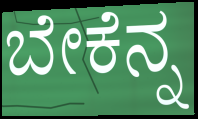
ಬೇಕೆನ್ನ